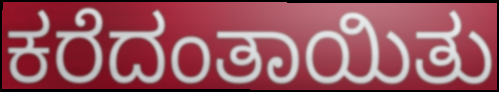
ಕರೆದಂತಾಯಿತು